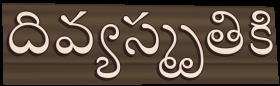
దివ్యస్మృతికి